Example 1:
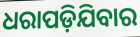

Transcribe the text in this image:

ଧରାପଡ଼ିଯିବାର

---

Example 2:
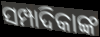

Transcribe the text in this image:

ସମ୍ପାଦିକାଙ୍କ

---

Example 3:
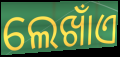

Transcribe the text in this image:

ଲେଖାଁଏ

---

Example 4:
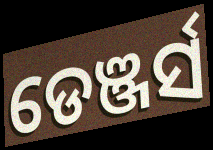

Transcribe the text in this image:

ଡେଞ୍ଜର୍ସ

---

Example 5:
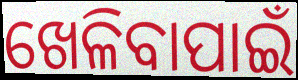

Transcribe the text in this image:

ଖେଳିବାପାଇଁ